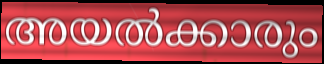
അയൽക്കാരും